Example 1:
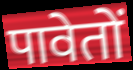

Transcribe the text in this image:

पावेतों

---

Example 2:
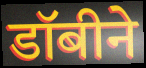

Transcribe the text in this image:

डॉबीने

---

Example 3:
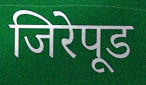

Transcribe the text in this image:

जिरेपूड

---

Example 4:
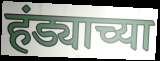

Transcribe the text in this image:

हंड्याच्या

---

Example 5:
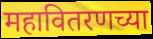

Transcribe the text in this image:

महावितरणच्या